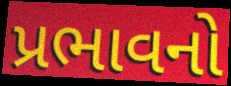
પ્રભાવનો